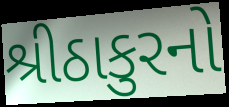
શ્રીઠાકુરનો